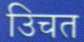
उिचत